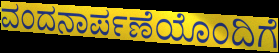
ವಂದನಾರ್ಪಣೆಯೊಂದಿಗೆ